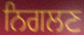
ਨਿਗਲਣ